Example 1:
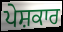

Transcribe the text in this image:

ਪੇਸ਼ਕਾਰ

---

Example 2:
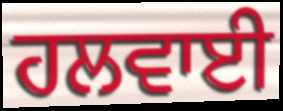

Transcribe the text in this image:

ਹਲਵਾਈ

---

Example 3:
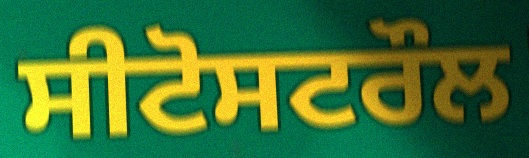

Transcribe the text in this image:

ਸੀਟੋਸਟਰੌਲ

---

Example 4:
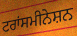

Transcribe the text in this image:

ਟਰਾਂਸਮੀਨੇਸ਼ਨ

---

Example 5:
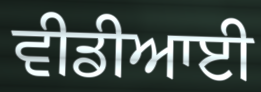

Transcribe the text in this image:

ਵੀਡੀਆਈ